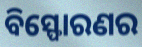
ବିସ୍ଫୋରଣର